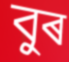
বুৰ